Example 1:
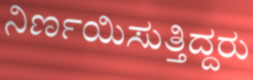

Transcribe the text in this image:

ನಿರ್ಣಯಿಸುತ್ತಿದ್ದರು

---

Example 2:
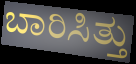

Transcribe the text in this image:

ಬಾರಿಸಿತ್ತು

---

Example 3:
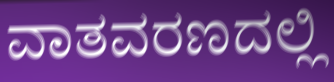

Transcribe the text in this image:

ವಾತವರಣದಲ್ಲಿ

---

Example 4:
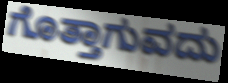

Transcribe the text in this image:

ಗೊತ್ತಾಗುವದು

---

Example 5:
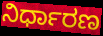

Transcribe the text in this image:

ನಿರ್ಧಾರಣ